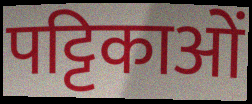
पट्टिकाओं